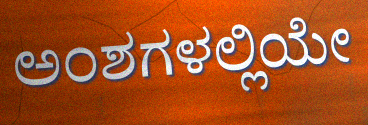
ಅಂಶಗಳಲ್ಲಿಯೇ